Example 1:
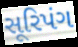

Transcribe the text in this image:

સૂરિપંગ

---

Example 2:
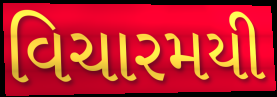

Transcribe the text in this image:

વિચારમયી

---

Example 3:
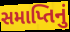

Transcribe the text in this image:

સમાપ્તિનું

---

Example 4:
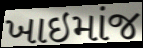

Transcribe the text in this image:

ખાઇમાંજ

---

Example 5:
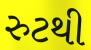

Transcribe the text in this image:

રુટથી